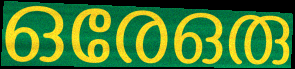
ഒരേഒരു